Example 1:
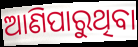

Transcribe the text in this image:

ଆଣିପାରୁଥିବା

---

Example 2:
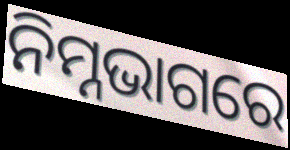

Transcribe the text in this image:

ନିମ୍ନଭାଗରେ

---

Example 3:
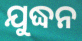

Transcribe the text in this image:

ଯୁଦ୍ଧନ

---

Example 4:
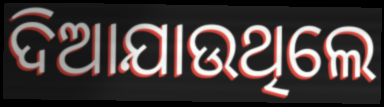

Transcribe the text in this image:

ଦିଆଯାଉଥିଲେ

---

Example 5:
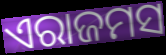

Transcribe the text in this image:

ଏରାଜମସ